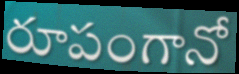
రూపంగానో